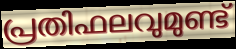
പ്രതിഫലവുമുണ്ട്